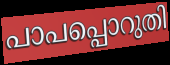
പാപപ്പൊറുതി